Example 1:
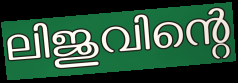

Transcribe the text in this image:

ലിജുവിന്റെ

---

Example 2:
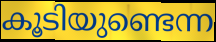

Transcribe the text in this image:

കൂടിയുണ്ടെന്ന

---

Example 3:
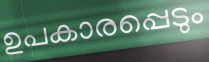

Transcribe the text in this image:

ഉപകാരപ്പെടും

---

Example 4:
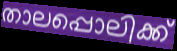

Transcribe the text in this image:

താലപ്പൊലിക്ക്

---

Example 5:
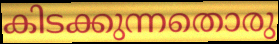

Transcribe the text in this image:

കിടക്കുന്നതൊരു